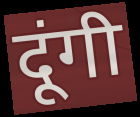
दूंगी